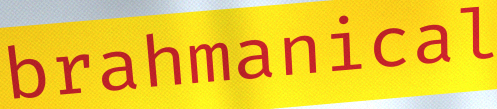
brahmanical